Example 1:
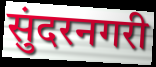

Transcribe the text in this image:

सुंदरनगरी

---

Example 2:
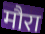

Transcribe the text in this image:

मौरा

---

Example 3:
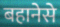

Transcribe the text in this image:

बहानेसे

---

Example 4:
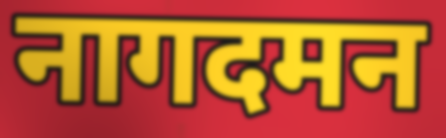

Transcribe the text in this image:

नागदमन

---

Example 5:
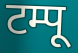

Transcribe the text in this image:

टम्पू